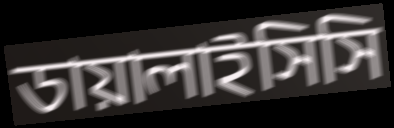
ডায়ালাইসিসি